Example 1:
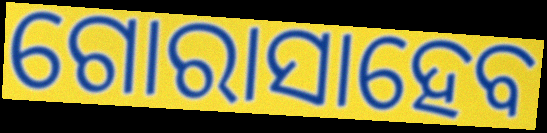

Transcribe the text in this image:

ଗୋରାସାହେବ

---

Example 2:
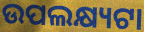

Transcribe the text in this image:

ଉପଲକ୍ଷ୍ୟଟା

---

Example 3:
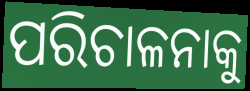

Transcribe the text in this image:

ପରିଚାଳନାକୁ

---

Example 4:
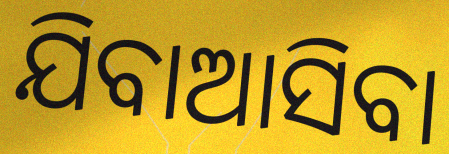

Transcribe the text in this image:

ଯିବାଆସିବା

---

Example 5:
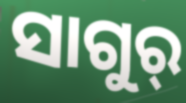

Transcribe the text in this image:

ସାଗୁର୍